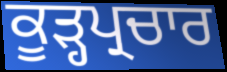
ਕੂੜ੍ਹਪ੍ਰਚਾਰ